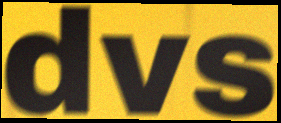
dvs